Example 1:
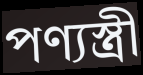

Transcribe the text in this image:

পণ্যস্ত্রী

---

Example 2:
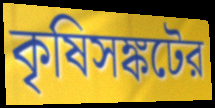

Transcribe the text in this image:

কৃষিসঙ্কটের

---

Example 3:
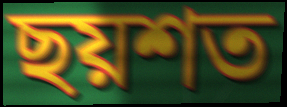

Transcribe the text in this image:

ছয়শত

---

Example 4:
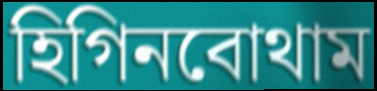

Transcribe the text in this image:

হিগিনবোথাম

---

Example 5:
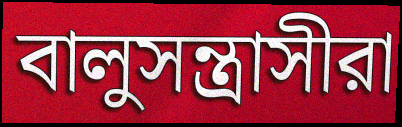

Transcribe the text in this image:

বালুসন্ত্রাসীরা